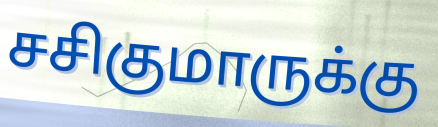
சசிகுமாருக்கு